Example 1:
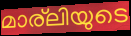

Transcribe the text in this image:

മാര്ലിയുടെ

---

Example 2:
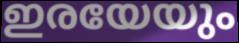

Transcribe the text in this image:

ഇരയേയും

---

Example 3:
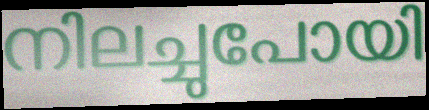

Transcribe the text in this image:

നിലച്ചുപോയി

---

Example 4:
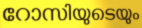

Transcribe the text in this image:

റോസിയുടെയും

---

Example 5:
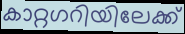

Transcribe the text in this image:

കാറ്റഗറിയിലേക്ക്